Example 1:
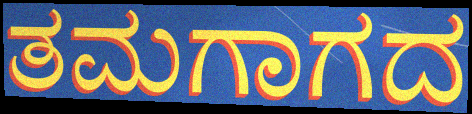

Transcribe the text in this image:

ತಮಗಾಗದ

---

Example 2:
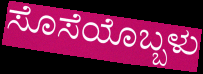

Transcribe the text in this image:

ಸೊಸೆಯೊಬ್ಬಳು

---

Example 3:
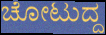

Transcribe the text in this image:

ಚೋಟುದ್ದ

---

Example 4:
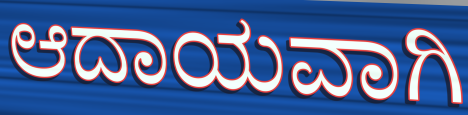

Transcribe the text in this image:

ಆದಾಯವಾಗಿ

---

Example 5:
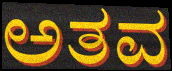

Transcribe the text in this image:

ಅತವ